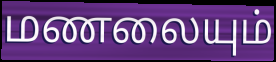
மணலையும்